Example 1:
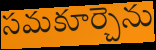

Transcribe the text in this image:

సమకూర్చెను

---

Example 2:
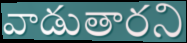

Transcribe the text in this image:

వాడుతారని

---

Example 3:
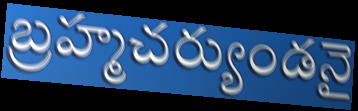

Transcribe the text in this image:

బ్రహ్మచర్యుండనై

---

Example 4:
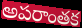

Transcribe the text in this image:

అపరాంతక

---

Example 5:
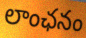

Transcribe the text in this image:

లాంఛనం